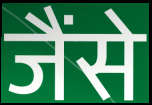
जैंसे